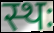
स्थः